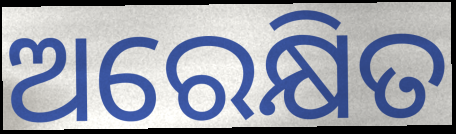
ଅରେକ୍ଷିତ